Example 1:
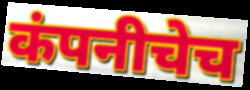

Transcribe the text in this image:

कंपनीचेच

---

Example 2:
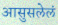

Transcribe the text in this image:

आसुसलेलं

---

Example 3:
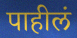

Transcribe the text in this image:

पाहीलं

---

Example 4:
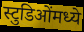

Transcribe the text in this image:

स्टुडिओंमध्ये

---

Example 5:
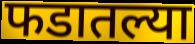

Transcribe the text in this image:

फडातल्या